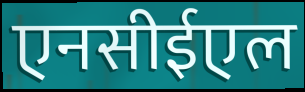
एनसीईएल